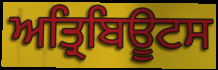
ਅਤ੍ਰਿਬਿਊਟਸ